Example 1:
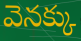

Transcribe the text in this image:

వెనక్కు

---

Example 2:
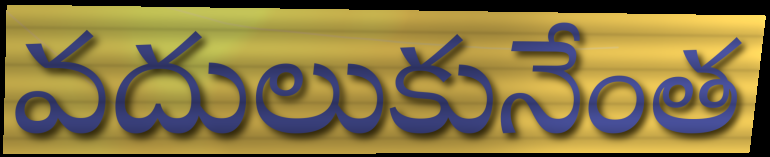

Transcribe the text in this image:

వదులుకునేంత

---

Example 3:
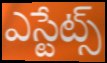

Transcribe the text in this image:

ఎస్టేట్స్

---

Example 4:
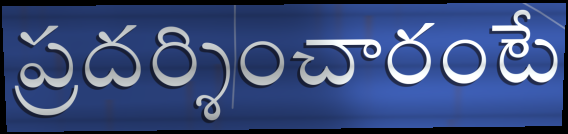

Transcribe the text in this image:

ప్రదర్శించారంటే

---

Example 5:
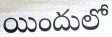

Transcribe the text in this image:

యిందులో